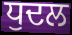
ਧੁਦਲ